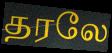
தரலே